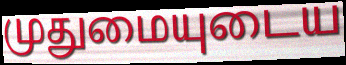
முதுமையுடைய